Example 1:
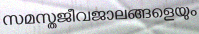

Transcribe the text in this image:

സമസ്തജീവജാലങ്ങളെയും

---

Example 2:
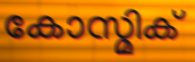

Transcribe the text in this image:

കോസ്മിക്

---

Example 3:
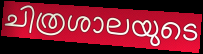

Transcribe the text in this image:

ചിത്രശാലയുടെ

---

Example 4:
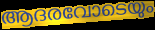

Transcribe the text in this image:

ആദരവോടെയും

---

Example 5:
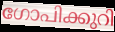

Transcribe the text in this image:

ഗോപിക്കുറി